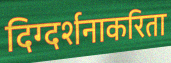
दिग्दर्शनाकरिता